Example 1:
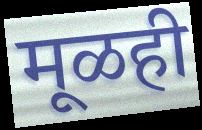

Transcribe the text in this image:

मूळही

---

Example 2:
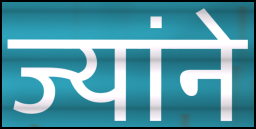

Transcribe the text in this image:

ज्यांने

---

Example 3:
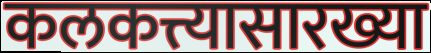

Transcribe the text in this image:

कलकत्त्यासारख्या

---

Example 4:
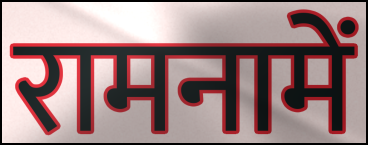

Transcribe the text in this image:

रामनामें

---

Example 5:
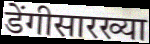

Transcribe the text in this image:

डेंगीसारख्या